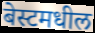
बेस्टमधील